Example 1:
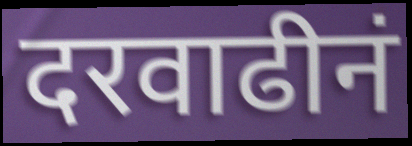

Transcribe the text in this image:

दरवाढीनं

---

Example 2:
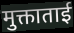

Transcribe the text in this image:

मुक्ताताई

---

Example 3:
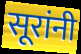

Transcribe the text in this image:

सूरांनी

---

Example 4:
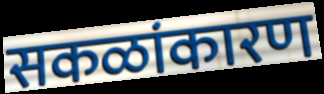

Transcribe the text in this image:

सकळांकारण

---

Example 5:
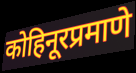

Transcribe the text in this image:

कोहिनूरप्रमाणे